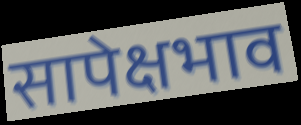
सापेक्षभाव